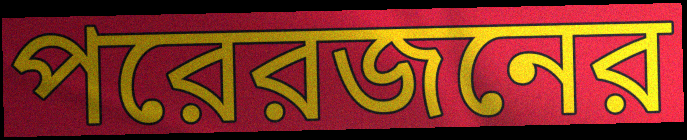
পরেরজনের